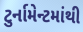
ટુર્નામેન્ટમાંથી